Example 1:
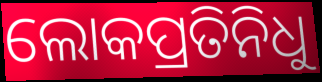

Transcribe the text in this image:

ଲୋକପ୍ରତିନିଧୁ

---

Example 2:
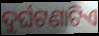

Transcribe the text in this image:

ଦୁର୍ଘଟଣାଟିଏ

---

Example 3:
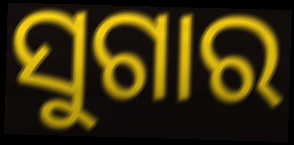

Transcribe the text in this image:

ସୁଗାର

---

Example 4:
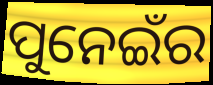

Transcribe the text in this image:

ପୁନେଇଁର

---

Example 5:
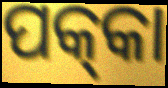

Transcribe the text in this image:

ପକ୍‌କା